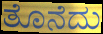
ತೊನೆದು